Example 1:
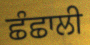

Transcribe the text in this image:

ਛੰਛਾਲੀ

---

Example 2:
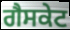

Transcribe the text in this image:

ਗੈਸਕੇਟ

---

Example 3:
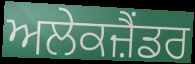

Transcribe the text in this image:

ਅਲੇਕਜ਼ੈਂਡਰ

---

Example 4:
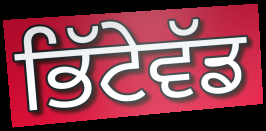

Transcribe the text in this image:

ਭਿੱਟੇਵੱਡ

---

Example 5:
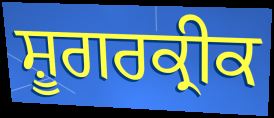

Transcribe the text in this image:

ਸ਼ੂਗਰਕ੍ਰੀਕ